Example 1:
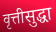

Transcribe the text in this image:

वृत्तीसुद्धा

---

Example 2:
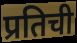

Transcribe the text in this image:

प्रतिची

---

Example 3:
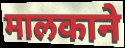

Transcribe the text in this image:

मालकाने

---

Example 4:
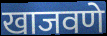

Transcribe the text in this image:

खाजवणे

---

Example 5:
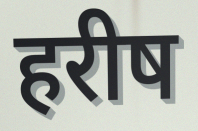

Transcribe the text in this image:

हरीष